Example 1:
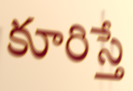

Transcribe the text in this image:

కూరిస్తే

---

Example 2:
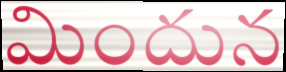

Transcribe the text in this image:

మిందున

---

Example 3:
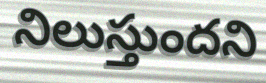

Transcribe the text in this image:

నిలుస్తుందని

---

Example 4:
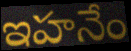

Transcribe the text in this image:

ఇహనేం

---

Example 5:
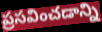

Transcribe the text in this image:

ప్రసవించడాన్ని